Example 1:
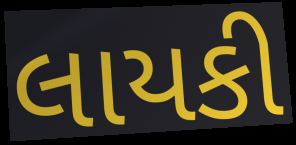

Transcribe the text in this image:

લાયકી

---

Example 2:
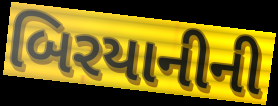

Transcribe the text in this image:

બિરયાનીની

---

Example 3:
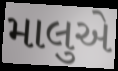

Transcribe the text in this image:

માલુએ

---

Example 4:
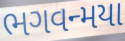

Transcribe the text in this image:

ભગવન્મયા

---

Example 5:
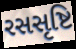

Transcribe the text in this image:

રસસૃષ્ટિ